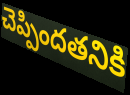
చెప్పిందతనికి